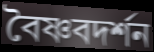
বৈষ্ণবদর্শন